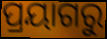
ପ୍ରୟାଗରୁ